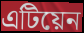
এটিয়েন